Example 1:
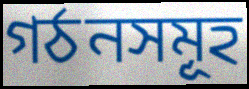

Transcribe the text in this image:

গঠনসমূহ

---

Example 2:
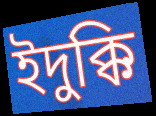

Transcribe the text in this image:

ইদুক্কি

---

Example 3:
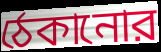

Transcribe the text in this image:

ঠেকানোর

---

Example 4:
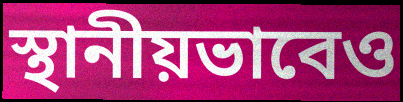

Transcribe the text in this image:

স্থানীয়ভাবেও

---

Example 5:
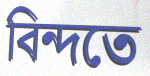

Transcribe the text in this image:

বিন্দতে